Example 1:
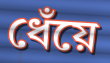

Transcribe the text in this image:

ধেঁয়ে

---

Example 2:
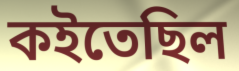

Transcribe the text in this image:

কইতেছিল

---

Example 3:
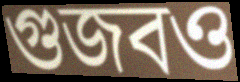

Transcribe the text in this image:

গুজবও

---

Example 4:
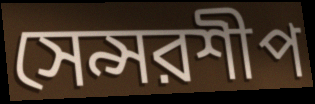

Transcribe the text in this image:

সেন্সরশীপ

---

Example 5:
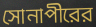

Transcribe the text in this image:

সোনাপীরের